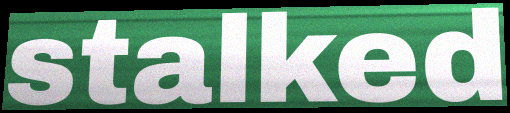
stalked